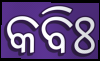
କବିଃ